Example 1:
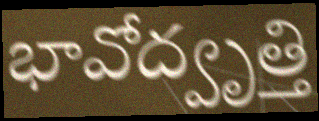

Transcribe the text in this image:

భావోద్వృత్తి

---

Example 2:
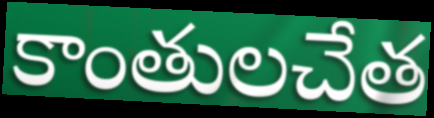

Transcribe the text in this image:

కాంతులచేత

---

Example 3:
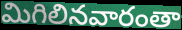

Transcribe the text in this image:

మిగిలినవారంతా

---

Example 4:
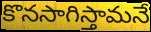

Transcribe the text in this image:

కొనసాగిస్తామనే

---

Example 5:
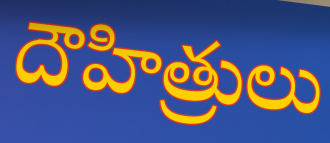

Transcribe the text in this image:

దౌహిత్రులు